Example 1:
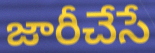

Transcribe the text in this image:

జారీచేసే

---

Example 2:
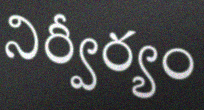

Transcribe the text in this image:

నిర్వీర్యం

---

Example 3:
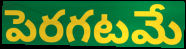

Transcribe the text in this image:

పెరగటమే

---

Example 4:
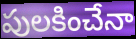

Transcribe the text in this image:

పులకించేనా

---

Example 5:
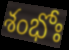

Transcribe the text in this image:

శంభోః